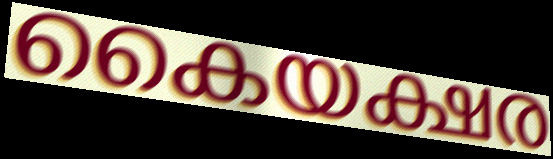
കൈയക്ഷര